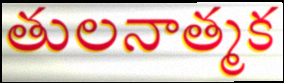
తులనాత్మక